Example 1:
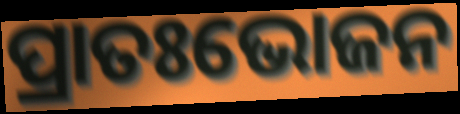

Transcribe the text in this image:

ପ୍ରାତଃଭୋଜନ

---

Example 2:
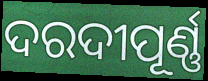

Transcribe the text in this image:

ଦରଦୀପୂର୍ଣ୍ଣ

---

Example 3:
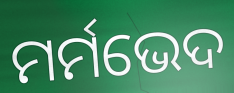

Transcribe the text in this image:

ମର୍ମଭେଦ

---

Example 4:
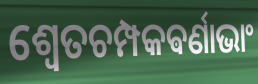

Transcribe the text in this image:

ଶ୍ଵେତଚମ୍ପକଵର୍ଣାଭାଂ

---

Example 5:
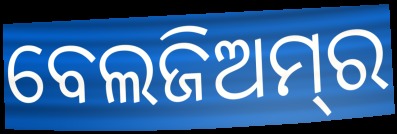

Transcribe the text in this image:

ବେଲଜିଅମ୍‌ର